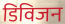
डिविजन